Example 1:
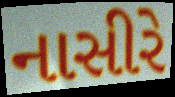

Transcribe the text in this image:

નાસીરે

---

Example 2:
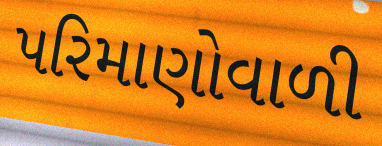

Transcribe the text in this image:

પરિમાણોવાળી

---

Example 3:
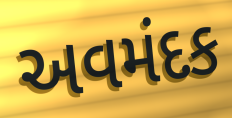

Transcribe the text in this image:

અવમંદક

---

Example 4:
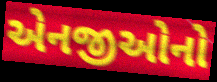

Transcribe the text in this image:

એનજીઓનો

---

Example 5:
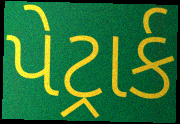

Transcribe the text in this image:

પેટ્રાર્ક